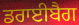
ਡਰਾਈਬੈਗ